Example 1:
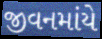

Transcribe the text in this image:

જીવનમાંયે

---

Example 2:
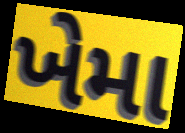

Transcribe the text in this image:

ખેમા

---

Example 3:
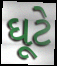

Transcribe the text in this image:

ઘૂટે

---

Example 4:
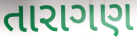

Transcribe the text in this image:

તારાગણ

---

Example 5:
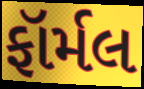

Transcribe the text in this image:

ફૉર્મલ